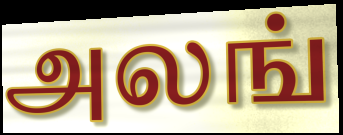
அலங்